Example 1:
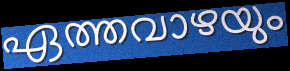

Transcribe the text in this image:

ഏത്തവാഴയും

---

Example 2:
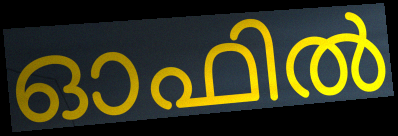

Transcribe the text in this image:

ഓഫിൽ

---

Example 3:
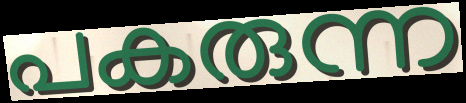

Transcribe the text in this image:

പകരുന്ന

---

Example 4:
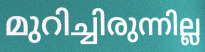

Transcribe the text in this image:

മുറിച്ചിരുന്നില്ല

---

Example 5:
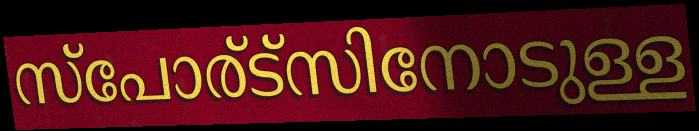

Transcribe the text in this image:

സ്പോര്ട്സിനോടുള്ള